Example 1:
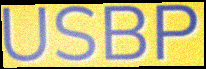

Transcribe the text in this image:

USBP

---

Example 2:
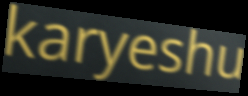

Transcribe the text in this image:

karyeshu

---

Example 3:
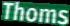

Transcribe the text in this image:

Thoms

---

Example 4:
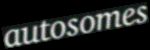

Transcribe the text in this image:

autosomes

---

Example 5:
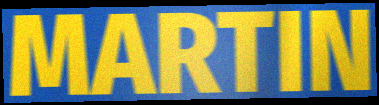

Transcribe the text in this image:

MARTIN